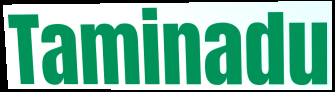
Taminadu